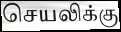
செயலிக்கு